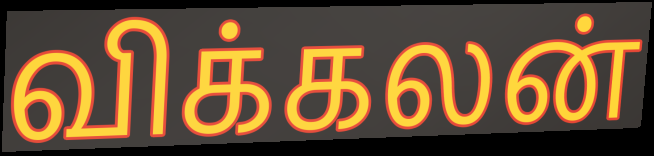
விக்கலன்